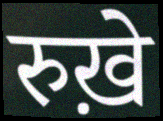
रुख़े